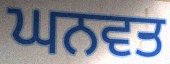
ਘਨਵਤ